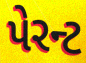
પેરન્ટ